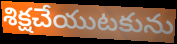
శిక్షచేయుటకును